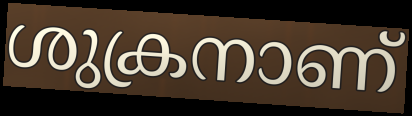
ശുക്രനാണ്